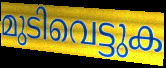
മുടിവെട്ടുക